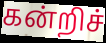
கன்றிச்